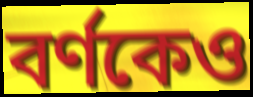
বর্ণকেও